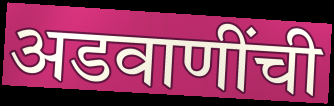
अडवाणींची